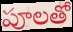
పూలతో